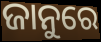
ଜାନୁରେ